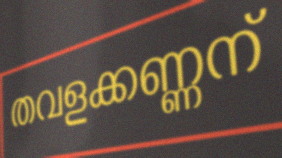
തവളക്കണ്ണന്